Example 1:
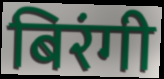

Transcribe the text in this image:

बिरंगी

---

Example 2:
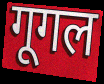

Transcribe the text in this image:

गूगल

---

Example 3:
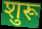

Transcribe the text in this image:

शुरू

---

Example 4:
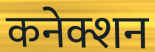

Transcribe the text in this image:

कनेक्शन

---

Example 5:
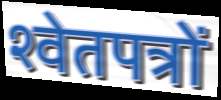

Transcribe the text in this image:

श्वेतपत्रों